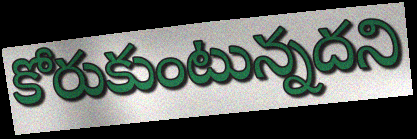
కోరుకుంటున్నదని